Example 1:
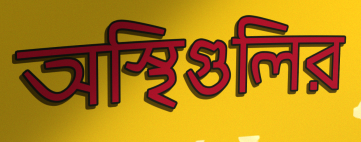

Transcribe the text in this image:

অস্থিগুলির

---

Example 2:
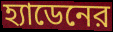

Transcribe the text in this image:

হ্যাডেনের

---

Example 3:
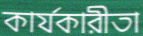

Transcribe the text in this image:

কার্যকারীতা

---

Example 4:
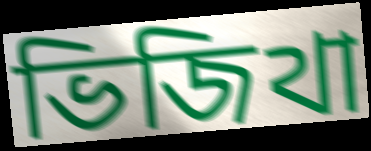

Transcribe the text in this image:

ভিজিথা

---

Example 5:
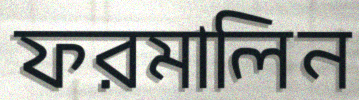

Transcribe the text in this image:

ফরমালিন